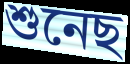
শুনেছ